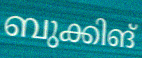
ബുക്കിങ്